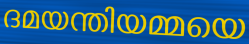
ദമയന്തിയമ്മയെ